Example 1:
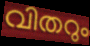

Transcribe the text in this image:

വിതറും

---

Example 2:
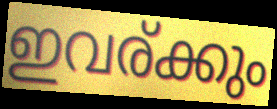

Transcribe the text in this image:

ഇവര്ക്കും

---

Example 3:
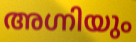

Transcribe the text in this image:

അഗ്നിയും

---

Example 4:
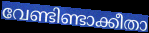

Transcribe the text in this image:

വേണ്ടിണ്ടാക്കീതാ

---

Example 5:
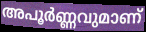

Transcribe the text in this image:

അപൂർണ്ണവുമാണ്